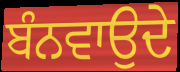
ਬੰਨਵਾਉਦੇ